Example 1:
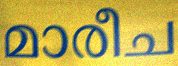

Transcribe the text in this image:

മാരീച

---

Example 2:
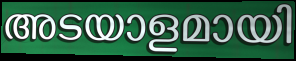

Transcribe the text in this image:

അടയാളമായി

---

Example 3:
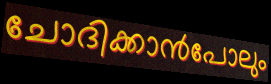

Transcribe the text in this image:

ചോദിക്കാൻപോലും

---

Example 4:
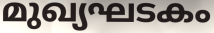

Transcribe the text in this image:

മുഖ്യഘടകം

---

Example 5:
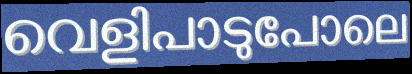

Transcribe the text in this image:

വെളിപാടുപോലെ